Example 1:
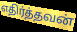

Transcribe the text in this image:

எதிர்த்தவன்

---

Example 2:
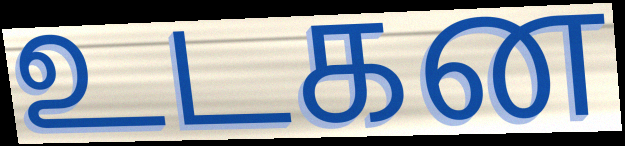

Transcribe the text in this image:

உடகன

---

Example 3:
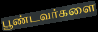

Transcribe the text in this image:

பூண்டவர்களை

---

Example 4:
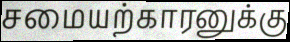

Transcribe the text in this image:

சமையற்காரனுக்கு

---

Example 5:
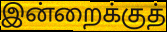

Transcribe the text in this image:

இன்றைக்குத்